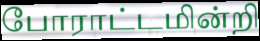
போராட்டமின்றி